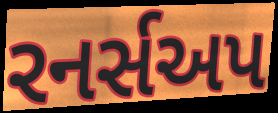
રનર્સઅપ